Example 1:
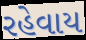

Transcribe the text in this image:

રહેવાય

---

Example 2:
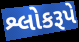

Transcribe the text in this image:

શ્લોકરૂપે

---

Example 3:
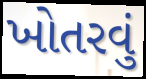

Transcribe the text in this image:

ખોતરવું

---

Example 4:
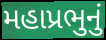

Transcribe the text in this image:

મહાપ્રભુનું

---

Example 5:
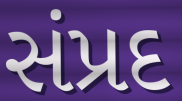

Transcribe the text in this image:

સંપ્રદ